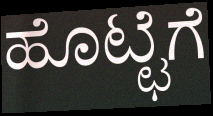
ಹೊಟ್ಟೆಗೆ